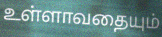
உள்ளாவதையும்